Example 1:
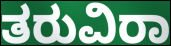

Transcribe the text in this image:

ತರುವಿರಾ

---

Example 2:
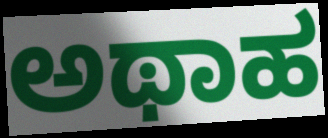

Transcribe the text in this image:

ಅಥಾಹ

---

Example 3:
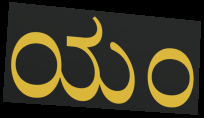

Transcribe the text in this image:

ಯಂ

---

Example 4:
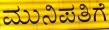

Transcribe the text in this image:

ಮುನಿಪತಿಗೆ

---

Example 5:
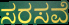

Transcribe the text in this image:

ಸರಸವೆ